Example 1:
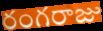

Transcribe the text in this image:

రంగరాజు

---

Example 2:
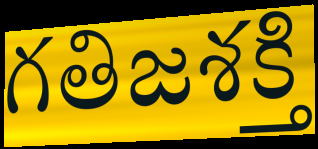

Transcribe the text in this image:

గతిజశక్తి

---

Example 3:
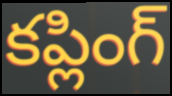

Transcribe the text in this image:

కప్లింగ్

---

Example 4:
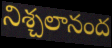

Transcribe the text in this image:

నిశ్చలానంద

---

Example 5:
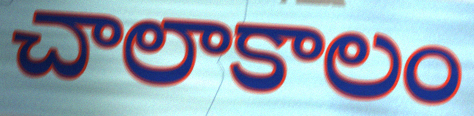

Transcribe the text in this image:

చాలాకాలం